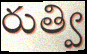
రుత్వి